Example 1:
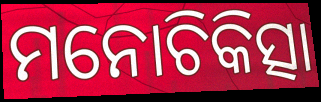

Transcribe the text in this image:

ମନୋଚିକିତ୍ସା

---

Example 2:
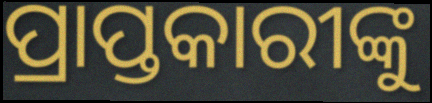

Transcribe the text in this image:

ପ୍ରାପ୍ତକାରୀଙ୍କୁ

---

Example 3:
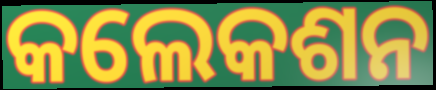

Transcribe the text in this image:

କଲେକଶନ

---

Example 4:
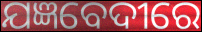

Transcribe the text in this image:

ଯଜ୍ଞବେଦୀରେ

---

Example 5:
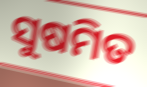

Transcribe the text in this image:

ସୁଷମିତ